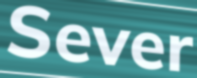
Sever